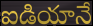
ఐడియానే